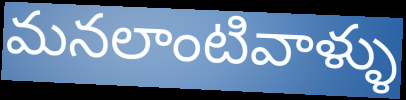
మనలాంటివాళ్ళు